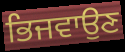
ਭਿਜਵਾਉਣ